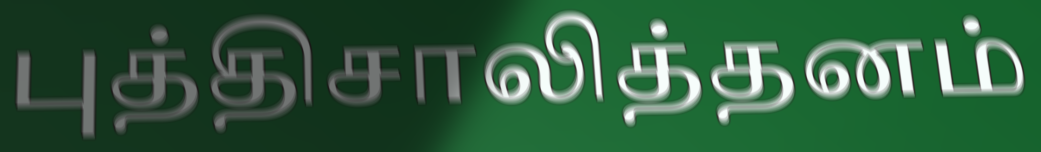
புத்திசாலித்தனம்